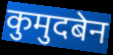
कुमुदबेन